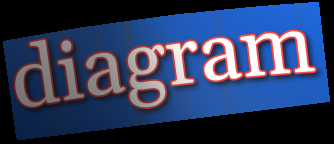
diagram